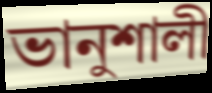
ভানুশালী